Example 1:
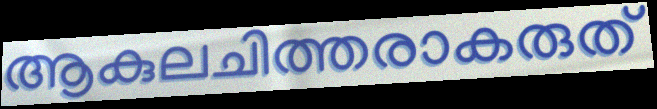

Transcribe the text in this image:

ആകുലചിത്തരാകരുത്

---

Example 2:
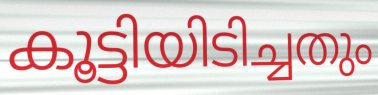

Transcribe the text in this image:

കൂട്ടിയിടിച്ചതും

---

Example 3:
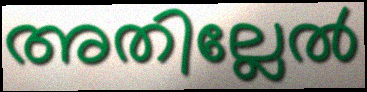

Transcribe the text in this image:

അതില്ലേൽ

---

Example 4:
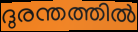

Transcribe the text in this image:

ദുരന്തത്തിൽ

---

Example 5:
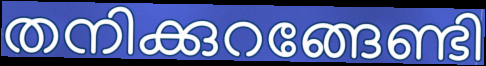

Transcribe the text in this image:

തനിക്കുറങ്ങേണ്ടി